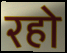
रहो